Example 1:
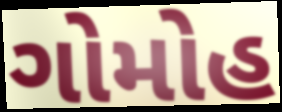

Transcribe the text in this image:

ગોમોહ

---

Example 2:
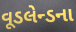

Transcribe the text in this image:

વૂડલેન્ડના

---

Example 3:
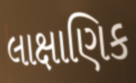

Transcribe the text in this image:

લાક્ષાણિક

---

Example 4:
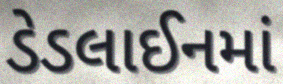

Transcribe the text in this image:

ડેડલાઈનમાં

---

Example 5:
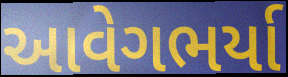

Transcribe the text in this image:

આવેગભર્યા